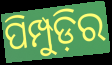
ପିମ୍ପୁଡ଼ିର